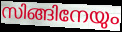
സിങ്ങിനേയും